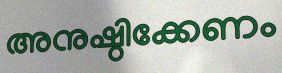
അനുഷ്ഠിക്കേണം